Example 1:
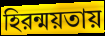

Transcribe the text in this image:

হিরন্ময়তায়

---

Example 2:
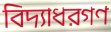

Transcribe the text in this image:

বিদ্যাধরগণ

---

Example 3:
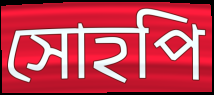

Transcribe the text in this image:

সোহপি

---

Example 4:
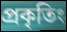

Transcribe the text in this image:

প্রকৃতিং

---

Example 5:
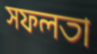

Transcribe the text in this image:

সফলতা